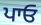
ਪਾਓ